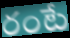
రంటే